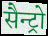
सैन्ट्रो